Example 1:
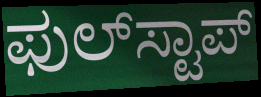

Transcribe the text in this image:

ಫುಲ್‍ಸ್ಟಾಪ್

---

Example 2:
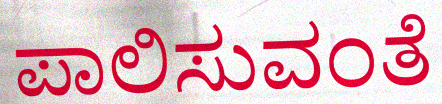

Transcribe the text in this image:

ಪಾಲಿಸುವಂತೆ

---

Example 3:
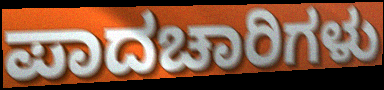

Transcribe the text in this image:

ಪಾದಚಾರಿಗಳು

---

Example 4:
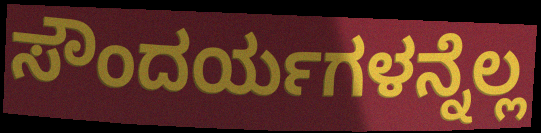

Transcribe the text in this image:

ಸೌಂದರ್ಯಗಳನ್ನೆಲ್ಲ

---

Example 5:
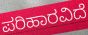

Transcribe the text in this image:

ಪರಿಹಾರವಿದೆ